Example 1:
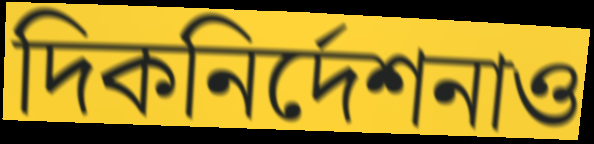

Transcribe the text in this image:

দিকনির্দেশনাও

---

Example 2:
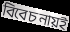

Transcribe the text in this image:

বিবেচনায়ই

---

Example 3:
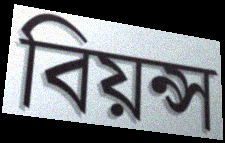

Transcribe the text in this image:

বিয়ন্স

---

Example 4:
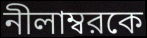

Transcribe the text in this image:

নীলাম্বরকে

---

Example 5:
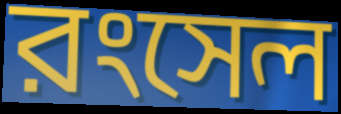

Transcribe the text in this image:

রংসেল